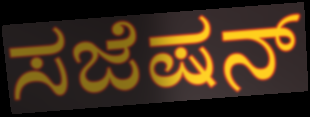
ಸಜೆಷನ್